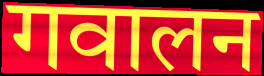
गवालन